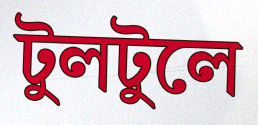
টুলটুলে